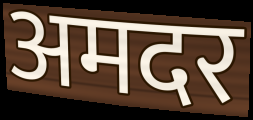
अमदर